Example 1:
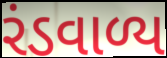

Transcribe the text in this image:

રંડવાળ્ય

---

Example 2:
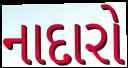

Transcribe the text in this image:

નાદારો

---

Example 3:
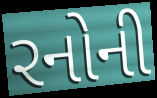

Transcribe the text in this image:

રનોની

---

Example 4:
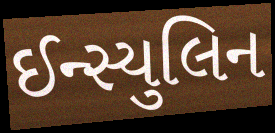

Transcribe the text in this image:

ઈન્સ્યુલિન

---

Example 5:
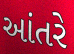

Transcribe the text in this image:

આંતરે